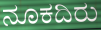
ನೂಕದಿರು